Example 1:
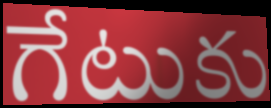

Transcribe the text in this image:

గేటుకు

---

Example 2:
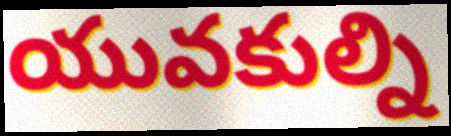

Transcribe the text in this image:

యువకుల్ని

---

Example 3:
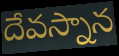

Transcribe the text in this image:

దేవస్నాన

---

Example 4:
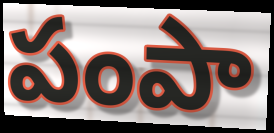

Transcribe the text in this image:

పంపా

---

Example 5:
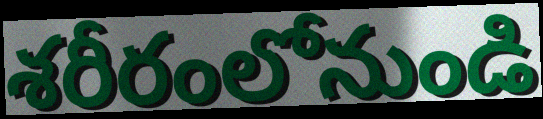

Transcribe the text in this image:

శరీరంలోనుండి